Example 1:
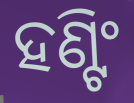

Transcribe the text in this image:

ହଣ୍ଟିଂ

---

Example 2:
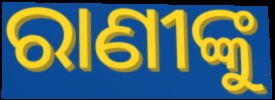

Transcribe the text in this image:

ରାଣୀଙ୍କୁ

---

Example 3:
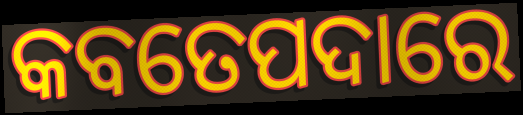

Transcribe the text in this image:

କବତେପଦାରେ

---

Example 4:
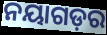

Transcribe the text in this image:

ନୟାଗଡ଼ର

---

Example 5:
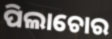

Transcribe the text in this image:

ପିଲାଚୋର